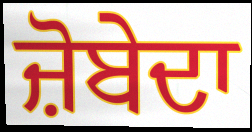
ਜ਼ੋਬੇਦਾ